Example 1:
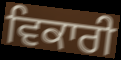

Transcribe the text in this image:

ਵਿਕਾਰੀ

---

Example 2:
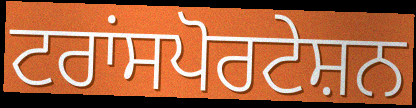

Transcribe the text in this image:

ਟਰਾਂਸਪੋਰਟੇਸ਼ਨ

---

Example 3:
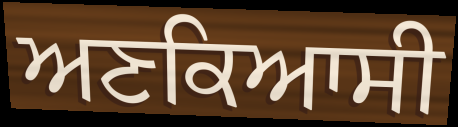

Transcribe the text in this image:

ਅਣਕਿਆਸੀ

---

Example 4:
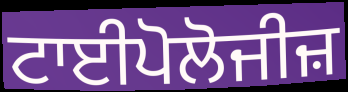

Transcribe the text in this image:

ਟਾਈਪੋਲੋਜੀਜ਼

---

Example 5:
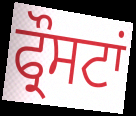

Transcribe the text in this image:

ਫ੍ਰੌਸਟਾਂ